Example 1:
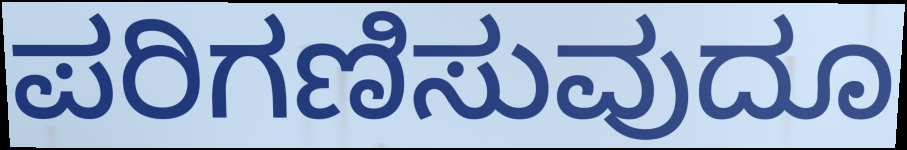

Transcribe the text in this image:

ಪರಿಗಣಿಸುವುದೂ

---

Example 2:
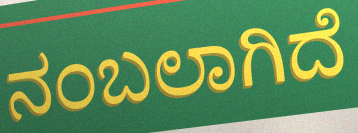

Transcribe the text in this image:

ನಂಬಲಾಗಿದೆ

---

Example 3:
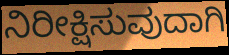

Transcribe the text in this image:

ನಿರೀಕ್ಷಿಸುವುದಾಗಿ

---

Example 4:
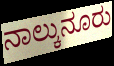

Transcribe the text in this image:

ನಾಲ್ಕುನೂರು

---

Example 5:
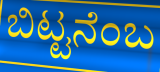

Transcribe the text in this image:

ಬಿಟ್ಟನೆಂಬ